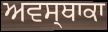
ਅਵਸ੍ਥਾਕਾ